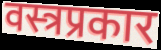
वस्त्रप्रकार